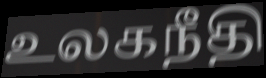
உலகநீதி